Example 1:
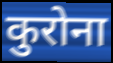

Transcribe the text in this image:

कुरोना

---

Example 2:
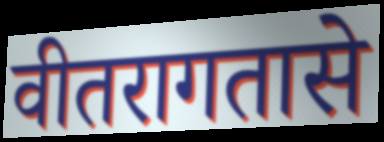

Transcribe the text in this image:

वीतरागतासे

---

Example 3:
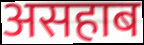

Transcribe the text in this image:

असहाब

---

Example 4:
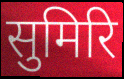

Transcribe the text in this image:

सुमिरि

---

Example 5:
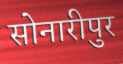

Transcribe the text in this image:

सोनारीपुर